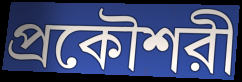
প্রকৌশরী